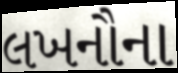
લખનૌના